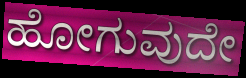
ಹೋಗುವುದೇ